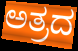
ಅತ್ರದ